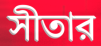
সীতার